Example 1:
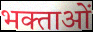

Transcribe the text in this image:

भक्ताओं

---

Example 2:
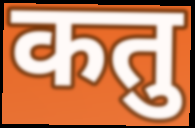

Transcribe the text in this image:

कतु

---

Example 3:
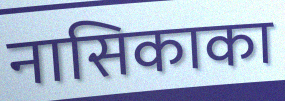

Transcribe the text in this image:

नासिकाका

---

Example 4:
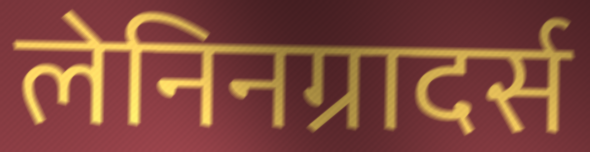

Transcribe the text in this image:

लेनिनग्रादर्स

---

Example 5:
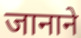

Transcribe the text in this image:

जानाने